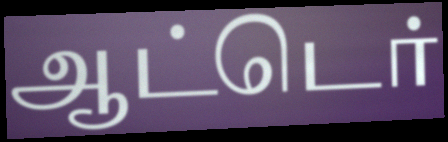
ஆட்டெர்